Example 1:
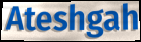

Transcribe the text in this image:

Ateshgah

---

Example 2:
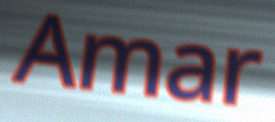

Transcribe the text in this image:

Amar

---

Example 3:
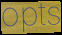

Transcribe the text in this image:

opts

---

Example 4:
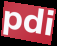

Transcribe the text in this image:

pdi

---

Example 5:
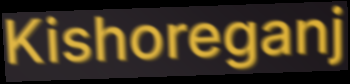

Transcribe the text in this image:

Kishoreganj